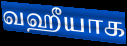
வஹீயாக